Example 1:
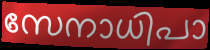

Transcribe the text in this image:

സേനാധിപാ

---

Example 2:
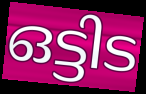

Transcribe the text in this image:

ഒട്ടിട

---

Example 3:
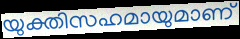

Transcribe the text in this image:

യുക്തിസഹമായുമാണ്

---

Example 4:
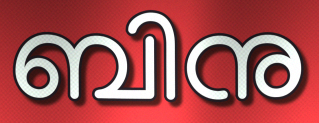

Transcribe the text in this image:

ബിനു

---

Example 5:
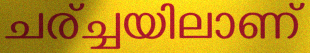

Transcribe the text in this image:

ചര്ച്ചയിലാണ്